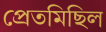
প্রেতমিছিল